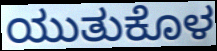
ಯುತುಕೊಳ